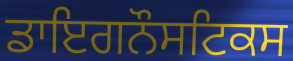
ਡਾਇਗਨੌਸਟਿਕਸ